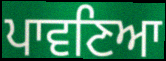
ਪਾਵਣਿਆ